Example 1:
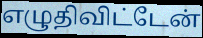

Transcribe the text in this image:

எழுதிவிட்டேன்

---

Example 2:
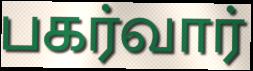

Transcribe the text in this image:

பகர்வார்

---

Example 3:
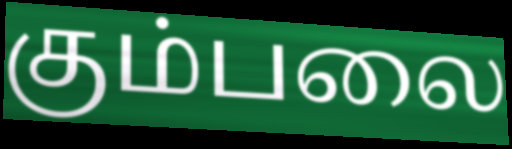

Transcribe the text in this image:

கும்பலை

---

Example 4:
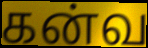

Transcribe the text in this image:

கன்வ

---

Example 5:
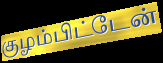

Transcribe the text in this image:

குழம்பிட்டேன்